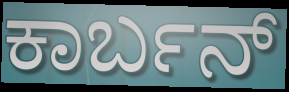
ಕಾರ್ಬನ್